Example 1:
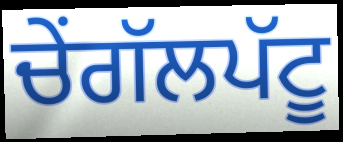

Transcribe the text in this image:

ਚੇਂਗੱਲਪੱਟੂ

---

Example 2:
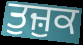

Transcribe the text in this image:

ਤੁਜ਼ੁਕ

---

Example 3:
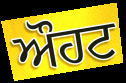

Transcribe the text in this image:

ਔਹਟ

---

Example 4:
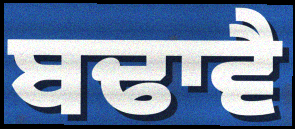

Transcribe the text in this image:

ਬਢਾਵੈ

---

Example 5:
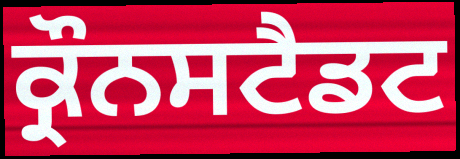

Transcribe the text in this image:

ਕ੍ਰੌਨਸਟੈਡਟ